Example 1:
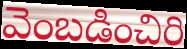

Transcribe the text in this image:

వెంబడించిరి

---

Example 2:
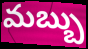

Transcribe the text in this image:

మబ్బు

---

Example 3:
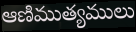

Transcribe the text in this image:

ఆణిముత్యములు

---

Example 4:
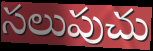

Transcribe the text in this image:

సలుపుచు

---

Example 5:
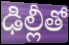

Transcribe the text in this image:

ఢిల్లీతో